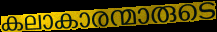
കലാകാരന്മാരുടെ